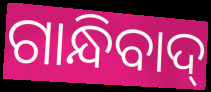
ଗାନ୍ଧିବାଦ୍